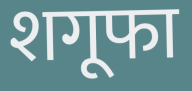
शगूफा